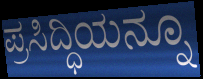
ಪ್ರಸಿದ್ಧಿಯನ್ನೂ